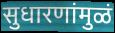
सुधारणांमुळं